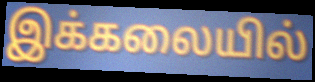
இக்கலையில்